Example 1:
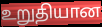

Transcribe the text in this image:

உறுதியான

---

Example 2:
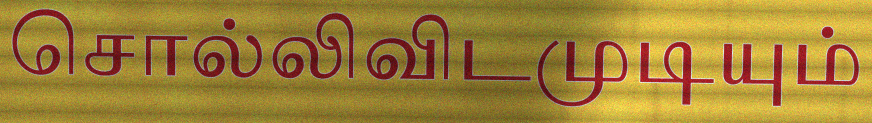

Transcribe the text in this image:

சொல்லிவிடமுடியும்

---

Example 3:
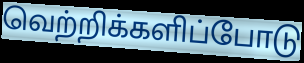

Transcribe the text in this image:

வெற்றிக்களிப்போடு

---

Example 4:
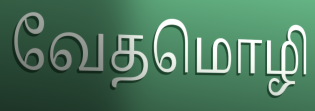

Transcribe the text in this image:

வேதமொழி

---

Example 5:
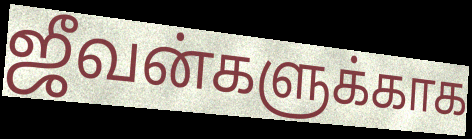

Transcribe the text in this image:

ஜீவன்களுக்காக